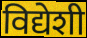
विद्येशी